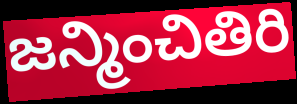
జన్మించితిరి